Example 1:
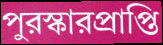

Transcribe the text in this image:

পুরস্কারপ্রাপ্তি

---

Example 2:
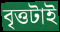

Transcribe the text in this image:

বৃত্তটাই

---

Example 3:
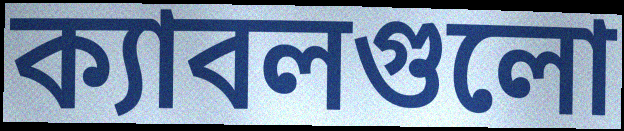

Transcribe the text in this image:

ক্যাবলগুলো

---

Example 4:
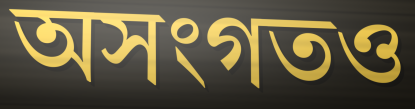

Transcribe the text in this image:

অসংগতও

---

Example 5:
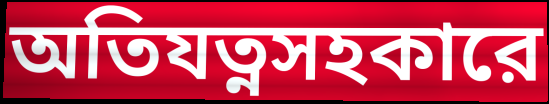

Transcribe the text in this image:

অতিযত্নসহকারে